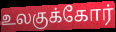
உலகுக்கோர்